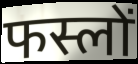
फस्लों